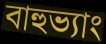
বাহুভ্যাং